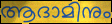
ആദാമിനും